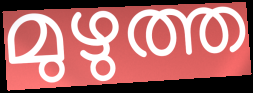
മുഴുത്ത